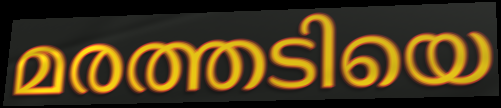
മരത്തടിയെ